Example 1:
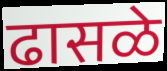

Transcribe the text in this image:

ढासळे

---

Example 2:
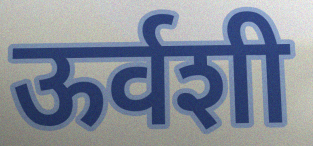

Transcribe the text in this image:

ऊर्वशी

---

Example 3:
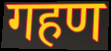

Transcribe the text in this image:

गहण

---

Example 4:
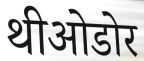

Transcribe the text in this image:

थीओडोर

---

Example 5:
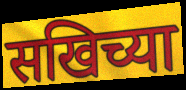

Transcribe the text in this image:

सखिच्या